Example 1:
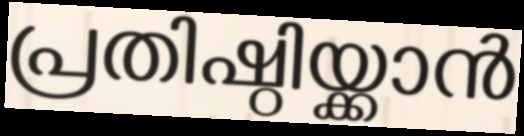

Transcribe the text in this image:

പ്രതിഷ്ഠിയ്ക്കാൻ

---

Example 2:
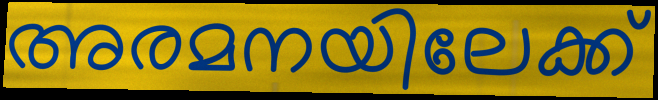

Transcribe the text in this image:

അരമനയിലേക്ക്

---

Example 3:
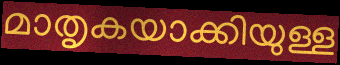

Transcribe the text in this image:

മാതൃകയാക്കിയുള്ള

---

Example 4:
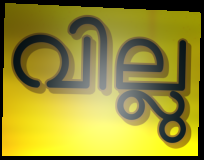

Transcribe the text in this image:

വില്ലു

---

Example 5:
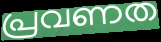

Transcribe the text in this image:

പ്രവണത